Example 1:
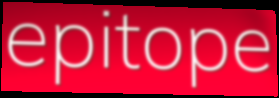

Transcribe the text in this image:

epitope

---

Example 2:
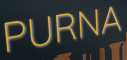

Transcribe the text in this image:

PURNA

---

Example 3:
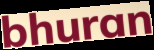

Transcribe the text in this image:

bhuran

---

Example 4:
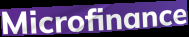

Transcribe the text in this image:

Microfinance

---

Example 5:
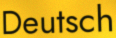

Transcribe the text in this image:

Deutsch